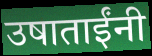
उषाताईंनी